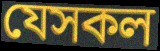
যেসকল